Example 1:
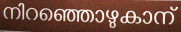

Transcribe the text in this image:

നിറഞ്ഞൊഴുകാന്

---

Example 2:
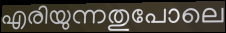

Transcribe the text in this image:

എരിയുന്നതുപോലെ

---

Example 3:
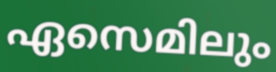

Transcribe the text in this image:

ഏസെമിലും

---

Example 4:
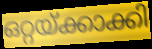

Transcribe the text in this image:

ഒറ്റയ്ക്കാക്കി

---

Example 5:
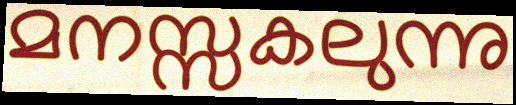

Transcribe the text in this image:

മനസ്സകലുന്നു